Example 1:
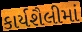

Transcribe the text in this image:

કાર્યશૈલીમાં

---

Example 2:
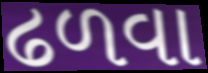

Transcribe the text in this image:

ઢળવા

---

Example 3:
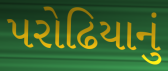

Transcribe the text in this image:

પરોઢિયાનું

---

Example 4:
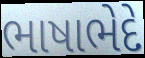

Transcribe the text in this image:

ભાષાભેદે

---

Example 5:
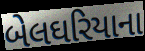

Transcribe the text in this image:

બેલઘરિયાના